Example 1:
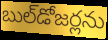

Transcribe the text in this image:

బుల్‌డోజర్లను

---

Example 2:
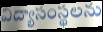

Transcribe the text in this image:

విద్యాసంస్థలను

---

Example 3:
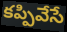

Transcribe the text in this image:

కప్పివేసే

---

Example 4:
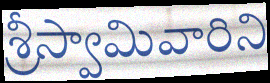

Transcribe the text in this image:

శ్రీస్వామివారిని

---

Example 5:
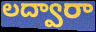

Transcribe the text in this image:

లద్వారా